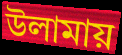
উলামায়